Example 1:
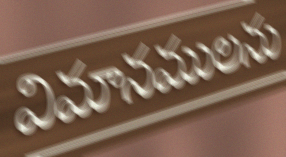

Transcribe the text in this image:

విమానములను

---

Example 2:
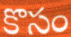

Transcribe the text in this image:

కొసం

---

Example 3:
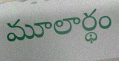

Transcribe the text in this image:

మూలార్థం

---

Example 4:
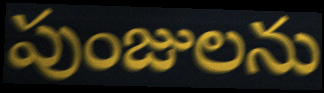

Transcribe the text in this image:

పుంజులను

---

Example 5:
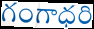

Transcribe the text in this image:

గంగాధరి